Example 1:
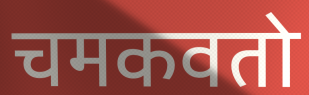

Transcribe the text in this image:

चमकवतो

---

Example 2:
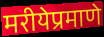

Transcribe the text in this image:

मरीयेप्रमाणे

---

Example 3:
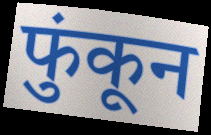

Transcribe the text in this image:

फुंकून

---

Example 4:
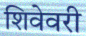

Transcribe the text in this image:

शिवेवरी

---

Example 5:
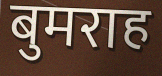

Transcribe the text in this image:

बुमराह